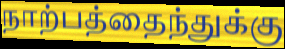
நாற்பத்தைந்துக்கு